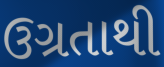
ઉગ્રતાથી